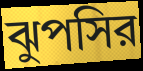
ঝুপসির